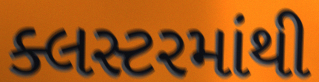
ક્લસ્ટરમાંથી